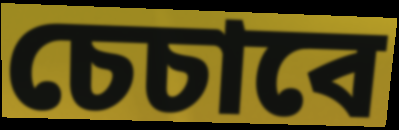
চেচাবে